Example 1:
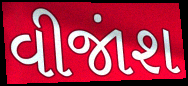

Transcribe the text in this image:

વીજાંશ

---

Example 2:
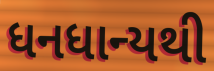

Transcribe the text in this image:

ધનધાન્યથી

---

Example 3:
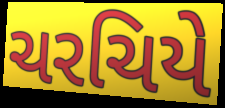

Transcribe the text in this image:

ચરચિયે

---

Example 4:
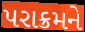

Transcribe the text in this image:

પરાક્રમને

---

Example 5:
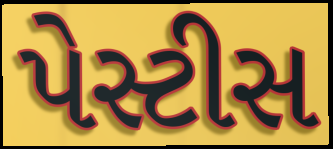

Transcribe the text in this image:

પેસ્ટીસ